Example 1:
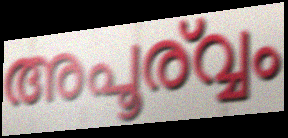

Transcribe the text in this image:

അപൂര്വ്വം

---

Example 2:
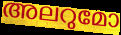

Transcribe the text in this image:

അലറുമോ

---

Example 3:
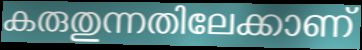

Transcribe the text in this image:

കരുതുന്നതിലേക്കാണ്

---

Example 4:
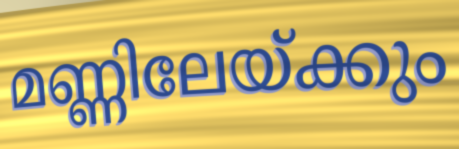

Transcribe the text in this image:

മണ്ണിലേയ്ക്കും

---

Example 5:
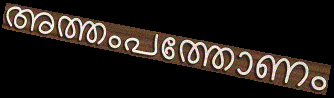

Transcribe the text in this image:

അത്തംപത്തോണം